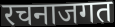
रचनाजगत